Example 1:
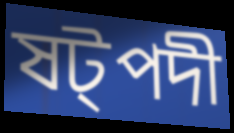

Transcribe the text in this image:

ষট্‌পদী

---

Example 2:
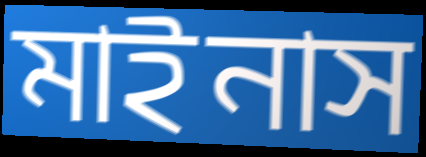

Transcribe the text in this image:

মাইনাস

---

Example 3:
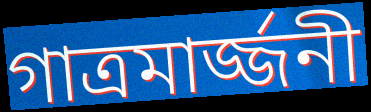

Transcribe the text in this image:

গাত্রমার্জ্জনী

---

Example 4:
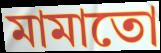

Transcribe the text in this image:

মামাতো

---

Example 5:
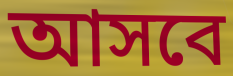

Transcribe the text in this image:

আসবে